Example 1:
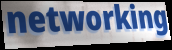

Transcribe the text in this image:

networking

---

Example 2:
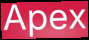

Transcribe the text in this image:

Apex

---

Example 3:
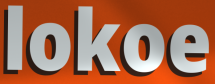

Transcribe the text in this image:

lokoe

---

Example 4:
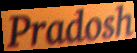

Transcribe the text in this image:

Pradosh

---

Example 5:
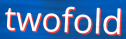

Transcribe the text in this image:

twofold